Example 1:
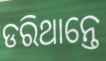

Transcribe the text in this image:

ଡରିଥାନ୍ତେ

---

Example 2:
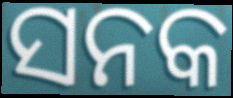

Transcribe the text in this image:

ସନକ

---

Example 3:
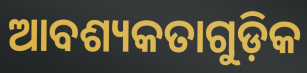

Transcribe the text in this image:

ଆବଶ୍ୟକତାଗୁଡ଼ିକ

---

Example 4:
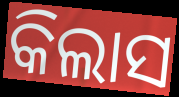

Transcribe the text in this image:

କିଲାସ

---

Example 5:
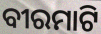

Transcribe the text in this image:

ବୀରମାଟି